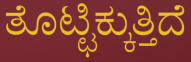
ತೊಟ್ಟಿಕ್ಕುತ್ತಿದೆ